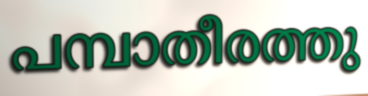
പമ്പാതീരത്തു